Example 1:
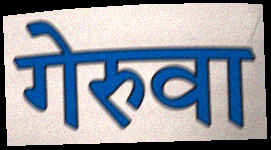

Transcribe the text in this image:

गेरुवा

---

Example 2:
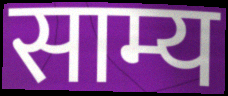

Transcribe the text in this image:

साम्‍य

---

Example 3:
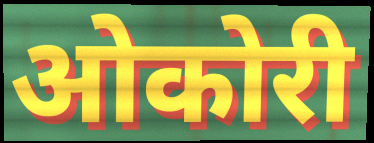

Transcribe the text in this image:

ओकोरी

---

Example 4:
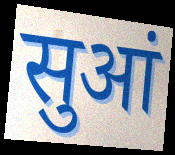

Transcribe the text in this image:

सुआं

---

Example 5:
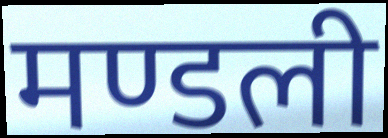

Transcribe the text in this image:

मण्डली